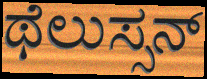
ಥೆಲುಸ್ಸನ್